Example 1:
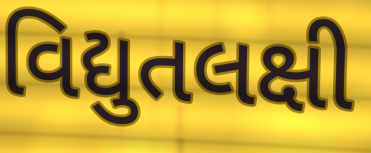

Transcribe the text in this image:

વિદ્યુતલક્ષી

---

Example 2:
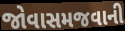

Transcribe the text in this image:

જોવાસમજવાની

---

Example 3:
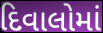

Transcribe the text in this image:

દિવાલોમાં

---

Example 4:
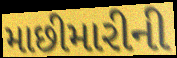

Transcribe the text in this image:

માછીમારીની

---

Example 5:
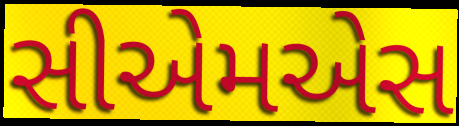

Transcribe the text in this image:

સીએમએસ